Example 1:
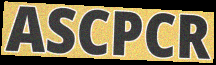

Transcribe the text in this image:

ASCPCR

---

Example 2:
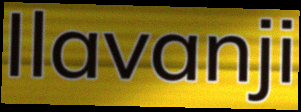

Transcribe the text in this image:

Ilavanji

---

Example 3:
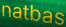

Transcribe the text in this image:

natbas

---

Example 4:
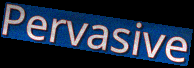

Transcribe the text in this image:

Pervasive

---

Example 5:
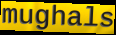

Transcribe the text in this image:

mughals